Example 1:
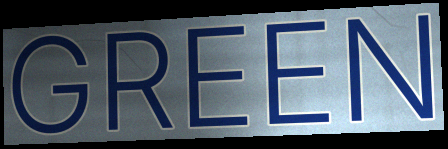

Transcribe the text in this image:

GREEN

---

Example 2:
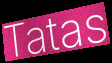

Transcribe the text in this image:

Tatas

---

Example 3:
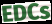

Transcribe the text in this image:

EDCs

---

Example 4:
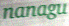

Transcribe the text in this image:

nanagu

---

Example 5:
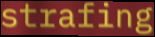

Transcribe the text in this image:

strafing